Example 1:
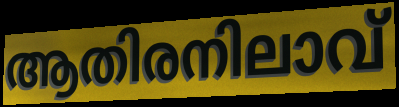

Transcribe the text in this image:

ആതിരനിലാവ്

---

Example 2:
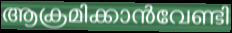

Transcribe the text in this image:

ആക്രമിക്കാൻവേണ്ടി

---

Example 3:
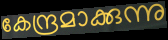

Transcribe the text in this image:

കേന്ദ്രമാക്കുന്നു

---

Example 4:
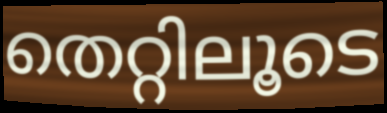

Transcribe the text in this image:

തെറ്റിലൂടെ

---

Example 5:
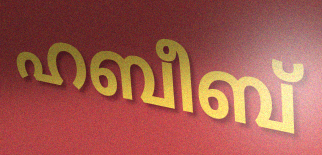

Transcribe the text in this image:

ഹബീബ്